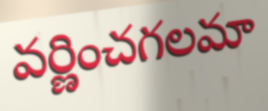
వర్ణించగలమా